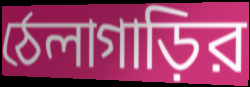
ঠেলাগাড়ির